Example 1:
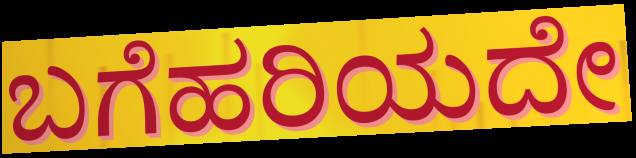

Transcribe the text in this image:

ಬಗೆಹರಿಯದೇ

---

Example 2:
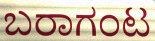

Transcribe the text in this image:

ಬರಾಗಂಟ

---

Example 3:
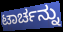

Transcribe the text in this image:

ಟಾರ್ಚನ್ನು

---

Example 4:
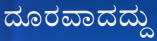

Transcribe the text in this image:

ದೂರವಾದದ್ದು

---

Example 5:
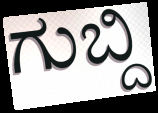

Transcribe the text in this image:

ಗುಬ್ದಿ